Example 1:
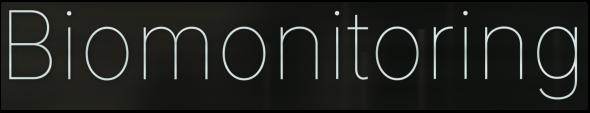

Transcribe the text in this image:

Biomonitoring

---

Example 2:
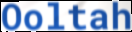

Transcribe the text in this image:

Ooltah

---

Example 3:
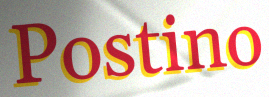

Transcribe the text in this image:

Postino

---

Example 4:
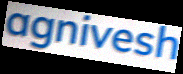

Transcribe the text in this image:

agnivesh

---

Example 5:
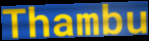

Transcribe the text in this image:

Thambu